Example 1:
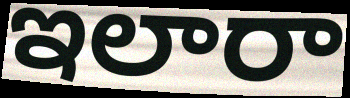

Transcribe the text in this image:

ఇలారా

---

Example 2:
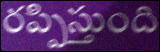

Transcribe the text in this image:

రప్పిస్తుంది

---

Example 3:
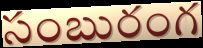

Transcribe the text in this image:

సంబురంగ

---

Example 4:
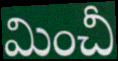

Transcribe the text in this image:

మించీ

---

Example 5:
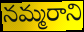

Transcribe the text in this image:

నమ్మరాని